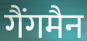
गैंगमैन